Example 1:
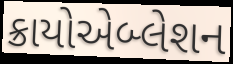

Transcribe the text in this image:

ક્રાયોએબ્લેશન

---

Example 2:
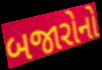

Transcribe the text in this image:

બજારોનો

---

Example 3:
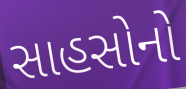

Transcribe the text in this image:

સાહસોનો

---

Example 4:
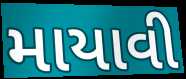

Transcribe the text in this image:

માયાવી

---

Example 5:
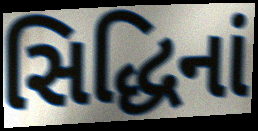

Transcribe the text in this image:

સિદ્ધિનાં